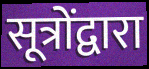
सूत्रोंद्वारा